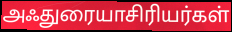
அஃதுரையாசிரியர்கள்